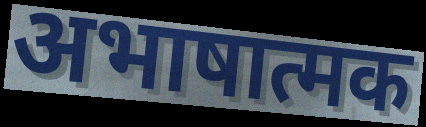
अभाषात्मक